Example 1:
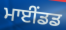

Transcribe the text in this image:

ਮਾਈਂਡਡ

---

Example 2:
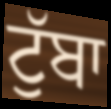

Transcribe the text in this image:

ਟੁੱਬਾ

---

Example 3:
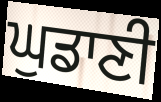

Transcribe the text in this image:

ਘੁਡਾਣੀ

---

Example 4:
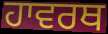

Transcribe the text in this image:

ਹਾਵਰਥ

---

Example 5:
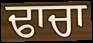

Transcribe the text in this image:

ਢਾਚਾ